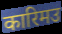
कारिमउ